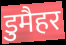
डुमैहर